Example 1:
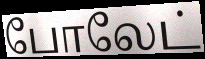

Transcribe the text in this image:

போலேட்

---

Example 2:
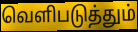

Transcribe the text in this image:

வெளிபடுத்தும்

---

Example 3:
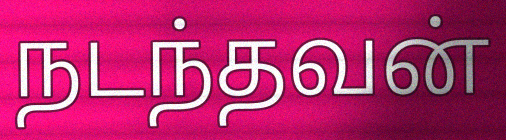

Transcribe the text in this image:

நடந்தவன்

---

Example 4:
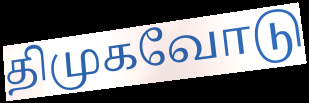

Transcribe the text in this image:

திமுகவோடு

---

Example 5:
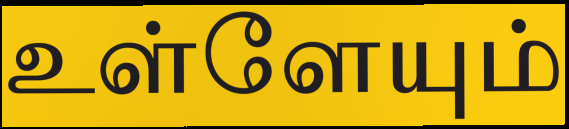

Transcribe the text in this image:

உள்ளேயும்